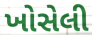
ખોસેલી